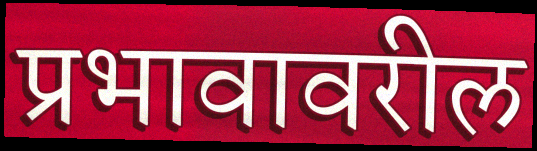
प्रभावावरील